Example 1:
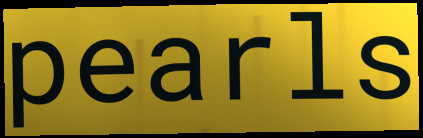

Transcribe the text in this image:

pearls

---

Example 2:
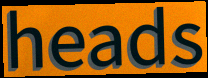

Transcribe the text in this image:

heads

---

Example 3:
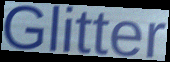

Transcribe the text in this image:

Glitter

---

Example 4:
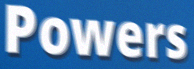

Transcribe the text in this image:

Powers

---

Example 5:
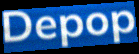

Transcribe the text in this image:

Depop